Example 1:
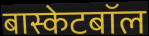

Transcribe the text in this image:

बास्‍केटबॉल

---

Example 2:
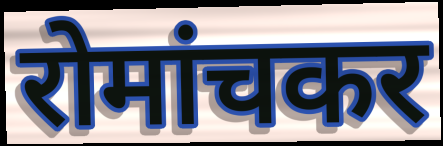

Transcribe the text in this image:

रोमांचकर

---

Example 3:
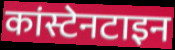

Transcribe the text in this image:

कांस्टेनटाइन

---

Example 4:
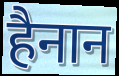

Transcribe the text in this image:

हैनान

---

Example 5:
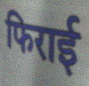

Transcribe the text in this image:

फिराई